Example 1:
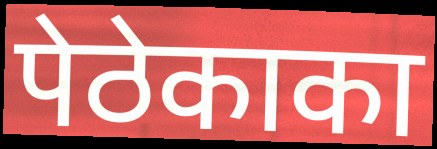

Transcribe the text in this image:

पेठेकाका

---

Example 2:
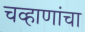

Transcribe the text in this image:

चव्हाणांचा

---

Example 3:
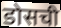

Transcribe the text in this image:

डोसची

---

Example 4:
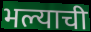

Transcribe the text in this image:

भल्याची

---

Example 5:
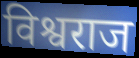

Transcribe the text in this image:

विश्वराज